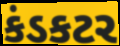
કંડકટર